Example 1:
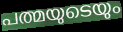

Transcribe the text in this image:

പത്മയുടെയും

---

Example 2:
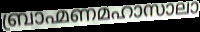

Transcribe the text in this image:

ബ്രാഹ്മണമഹാസാലാ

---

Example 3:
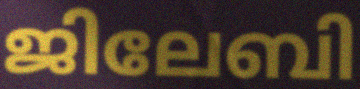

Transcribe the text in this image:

ജിലേബി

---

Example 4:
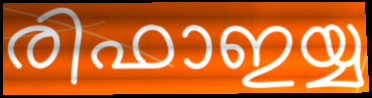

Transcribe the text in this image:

രിഫാഇയ്യ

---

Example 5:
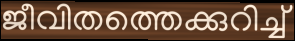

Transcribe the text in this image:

ജീവിതത്തെക്കുറിച്ച്